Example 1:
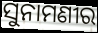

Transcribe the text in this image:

ସୁନାମଣୀର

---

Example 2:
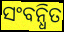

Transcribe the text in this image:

ସଂବନ୍ଧିତ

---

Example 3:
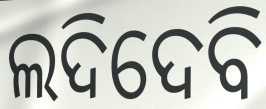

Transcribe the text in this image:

ଲଦିଦେବି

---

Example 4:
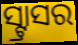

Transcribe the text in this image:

ସ୍ଟ୍ରାସର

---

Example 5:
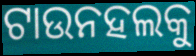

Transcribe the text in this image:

ଟାଉନହଲକୁ